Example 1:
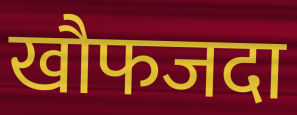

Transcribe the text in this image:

खौफजदा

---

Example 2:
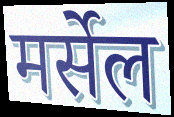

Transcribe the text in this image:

मर्सेल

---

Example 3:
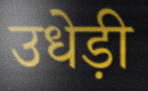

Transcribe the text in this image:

उधेड़ी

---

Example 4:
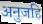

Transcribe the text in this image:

अनुजहि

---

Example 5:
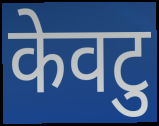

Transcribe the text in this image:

केवटु